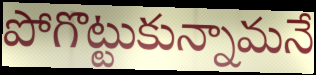
పోగొట్టుకున్నామనే